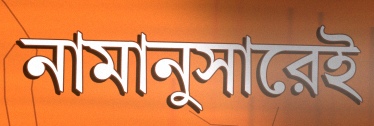
নামানুসারেই